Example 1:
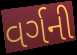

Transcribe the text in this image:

વર્ગની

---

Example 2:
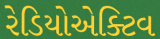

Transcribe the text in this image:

રેડિયોએક્ટિવ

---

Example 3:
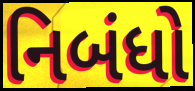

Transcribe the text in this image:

નિબંધો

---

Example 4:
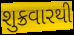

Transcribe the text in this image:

શુક્રવારથી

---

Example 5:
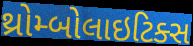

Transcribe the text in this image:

થ્રોમ્બોલાઇટિક્સ